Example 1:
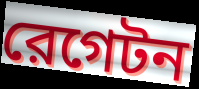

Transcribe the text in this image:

রেগেটন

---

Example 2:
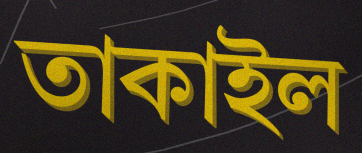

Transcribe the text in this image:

তাকাইল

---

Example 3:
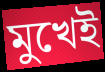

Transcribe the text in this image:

মুখেই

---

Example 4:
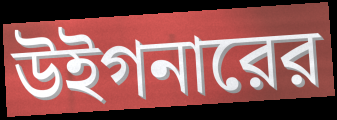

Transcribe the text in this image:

উইগনারের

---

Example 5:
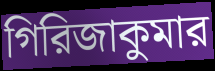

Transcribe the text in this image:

গিরিজাকুমার